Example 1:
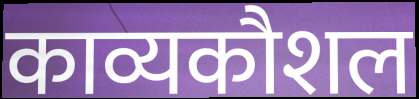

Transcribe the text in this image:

काव्यकौशल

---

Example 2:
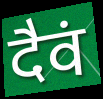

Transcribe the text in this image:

दैवं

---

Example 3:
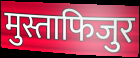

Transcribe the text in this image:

मुस्ताफिजुर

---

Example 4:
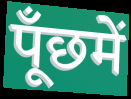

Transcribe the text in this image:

पूँछमें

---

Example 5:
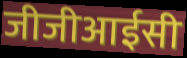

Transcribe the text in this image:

जीजीआईसी